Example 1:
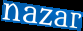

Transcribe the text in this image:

nazar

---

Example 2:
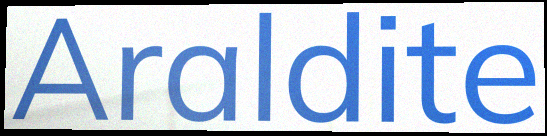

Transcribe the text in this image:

Araldite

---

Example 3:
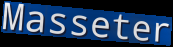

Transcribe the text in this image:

Masseter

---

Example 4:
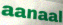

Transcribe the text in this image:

aanaal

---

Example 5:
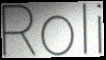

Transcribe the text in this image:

Roli